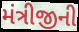
મંત્રીજીની